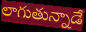
లాగుతున్నాడే